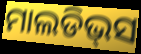
ମାଲଡିଭ୍‌ସ